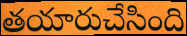
తయారుచేసింది